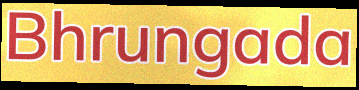
Bhrungada